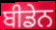
ਬੀਡੇਨ